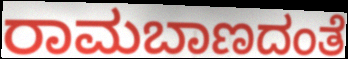
ರಾಮಬಾಣದಂತೆ